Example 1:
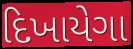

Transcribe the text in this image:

દિખાયેગા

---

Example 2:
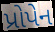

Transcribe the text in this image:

પ્રોપેન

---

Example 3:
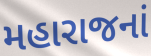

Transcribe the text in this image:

મહારાજનાં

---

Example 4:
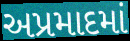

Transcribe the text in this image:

અપ્રમાદમાં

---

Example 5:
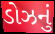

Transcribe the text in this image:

ડોઝનું